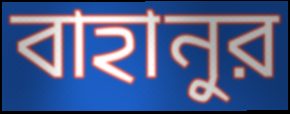
বাহানুর